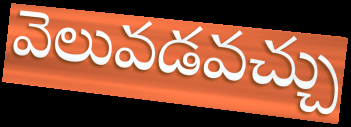
వెలువడవచ్చు